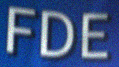
FDE